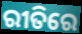
ରୀତିରେ